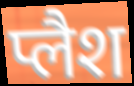
प्लैश